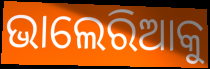
ଭାଲେରିଆକୁ